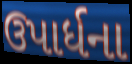
ઉપાર્ધના